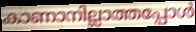
കാണാനില്ലാത്തപ്പോൾ